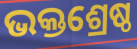
ଭକ୍ତଶ୍ରେଷ୍ଠ